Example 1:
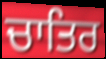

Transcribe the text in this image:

ਚਾਤਿਰ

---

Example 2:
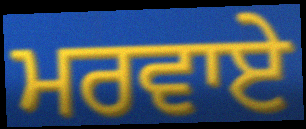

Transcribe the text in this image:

ਮਰਵਾਏ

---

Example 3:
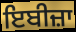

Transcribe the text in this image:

ਇਬੀਜ਼ਾ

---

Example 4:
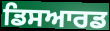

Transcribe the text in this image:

ਡਿਸਆਰਡ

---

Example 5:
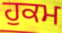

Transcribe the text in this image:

ਹੁਕਮ